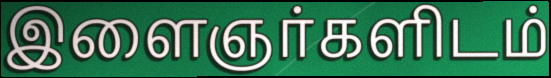
இளைஞர்களிடம்